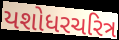
યશોધરચરિત્ર